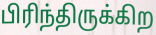
பிரிந்திருக்கிற